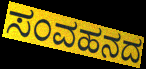
ಸಂವಹನದ